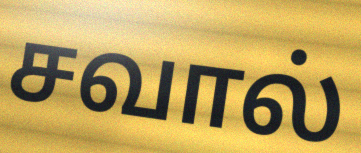
சவால்